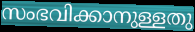
സംഭവിക്കാനുള്ളതു